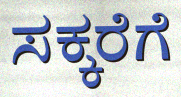
ಸಕ್ಕರೆಗೆ